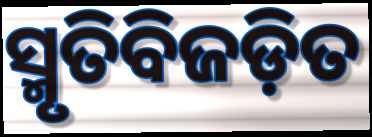
ସ୍ମୃତିବିଜଡ଼ିତ